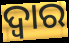
ଦ୍ୱାର